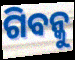
ଗିବନ୍କୁ